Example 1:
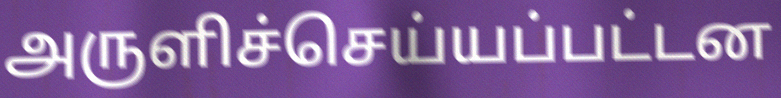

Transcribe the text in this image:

அருளிச்செய்யப்பட்டன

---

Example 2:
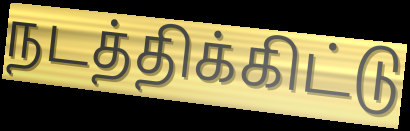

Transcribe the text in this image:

நடத்திக்கிட்டு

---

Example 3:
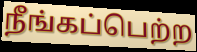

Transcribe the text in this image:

நீங்கப்பெற்ற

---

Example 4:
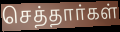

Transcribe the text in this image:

செத்தார்கள்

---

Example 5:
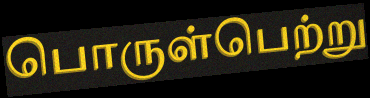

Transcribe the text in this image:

பொருள்பெற்று